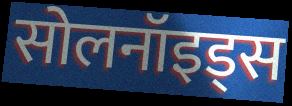
सोलनॉइड्स